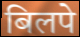
बिलपे